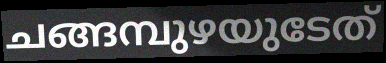
ചങ്ങമ്പുഴയുടേത്